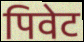
पिवेट